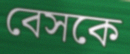
বেসকে